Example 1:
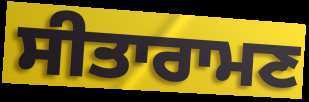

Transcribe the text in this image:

ਸੀਤਾਰਾਮਣ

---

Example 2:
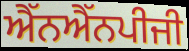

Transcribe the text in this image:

ਐੱਨਐੱਨਪੀਜੀ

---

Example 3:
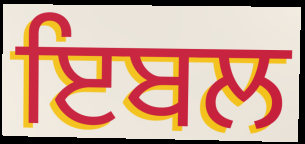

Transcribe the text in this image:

ਇਬਲ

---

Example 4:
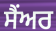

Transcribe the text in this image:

ਸੈਂਅਰ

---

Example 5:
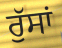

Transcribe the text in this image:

ਰੁੱਸਾਂ